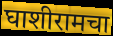
घाशीरामचा